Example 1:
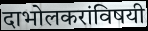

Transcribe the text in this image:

दाभोलकरांविषयी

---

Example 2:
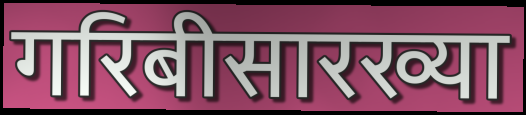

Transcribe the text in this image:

गरिबीसारख्या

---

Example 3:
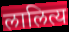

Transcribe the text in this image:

लालित्य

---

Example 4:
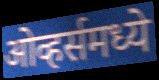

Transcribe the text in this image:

ओव्हर्समध्ये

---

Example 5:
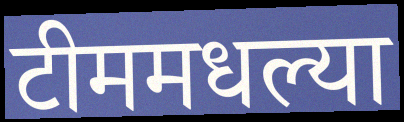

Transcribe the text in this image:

टीममधल्या